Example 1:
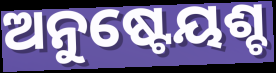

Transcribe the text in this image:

ଅନୁଷ୍ଟେୟଶ୍ଚ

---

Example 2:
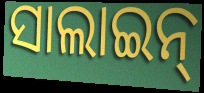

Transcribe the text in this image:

ସାଲାଇନ୍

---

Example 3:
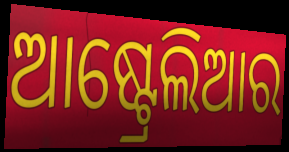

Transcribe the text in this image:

ଆଷ୍ଟ୍ରେଲିଆର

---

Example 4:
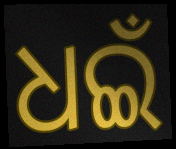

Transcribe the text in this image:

ଧଇଁ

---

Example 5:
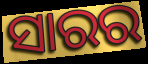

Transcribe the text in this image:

ସାରର